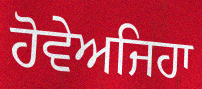
ਹੋਵੇਅਜਿਹਾ